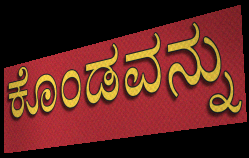
ಕೊಂಡವನ್ನು